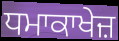
ਧਮਾਕਾਖੇਜ਼